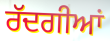
ਰੱਦਗੀਆਂ